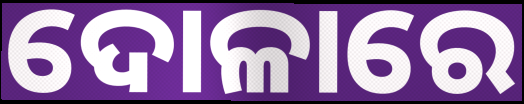
ଦୋଳାରେ